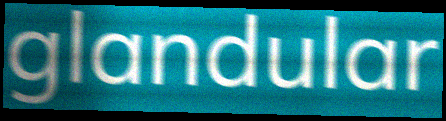
glandular